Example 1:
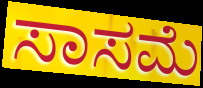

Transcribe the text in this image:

ಸಾಸಮೆ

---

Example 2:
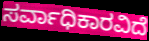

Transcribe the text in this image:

ಸರ್ವಾಧಿಕಾರವಿದೆ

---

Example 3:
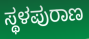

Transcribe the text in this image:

ಸ್ಥಳಪುರಾಣ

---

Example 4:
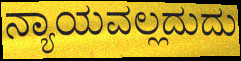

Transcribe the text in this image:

ನ್ಯಾಯವಲ್ಲದುದು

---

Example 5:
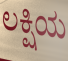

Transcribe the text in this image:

ಲಕ್ಷಿಯ